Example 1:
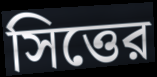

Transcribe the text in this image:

সিত্তের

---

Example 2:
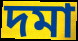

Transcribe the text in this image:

দমা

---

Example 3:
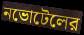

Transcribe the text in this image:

নভোটেলের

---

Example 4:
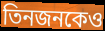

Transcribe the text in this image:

তিনজনকেও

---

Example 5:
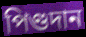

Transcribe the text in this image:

পিণ্ডদান